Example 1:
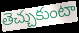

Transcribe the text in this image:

తెచ్చుకుంటా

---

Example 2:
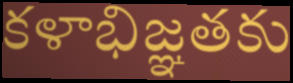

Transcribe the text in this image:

కళాభిజ్ఞతకు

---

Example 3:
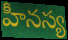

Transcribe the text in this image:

హీనస్య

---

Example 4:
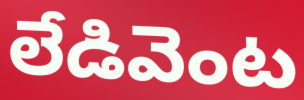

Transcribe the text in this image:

లేడివెంట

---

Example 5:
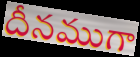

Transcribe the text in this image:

దీనముగా